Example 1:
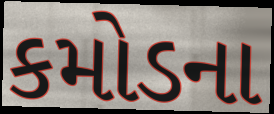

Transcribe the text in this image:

કમોડના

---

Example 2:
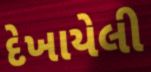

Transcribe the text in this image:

દેખાયેલી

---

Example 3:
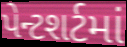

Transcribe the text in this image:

પેન્ટશર્ટમાં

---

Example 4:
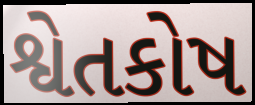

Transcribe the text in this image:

શ્વેતકોષ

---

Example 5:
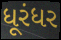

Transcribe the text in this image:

ધૂરંધર